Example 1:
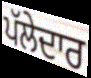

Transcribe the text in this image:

ਪੱਲੇਦਾਰ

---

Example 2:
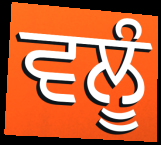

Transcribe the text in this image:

ਵਲੂੰ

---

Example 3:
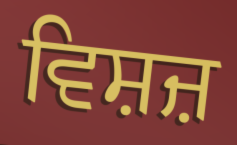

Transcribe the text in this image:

ਵਿਸ਼ਜ਼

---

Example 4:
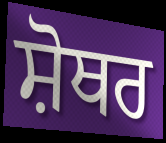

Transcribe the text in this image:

ਸ਼ੋਥਰ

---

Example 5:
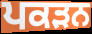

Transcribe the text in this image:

ਪਕੜਨ